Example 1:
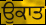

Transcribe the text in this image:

ਉਕਾਤ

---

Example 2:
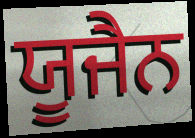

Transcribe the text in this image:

ਯੂਜੈਨ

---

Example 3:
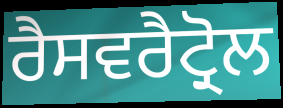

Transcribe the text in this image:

ਰੈਸਵਰੈਟ੍ਰੋਲ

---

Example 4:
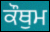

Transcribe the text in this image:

ਕੌਥੁਮ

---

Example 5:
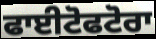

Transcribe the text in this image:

ਫਾਈਟੋਫਟੋਰਾ